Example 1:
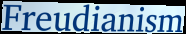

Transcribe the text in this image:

Freudianism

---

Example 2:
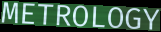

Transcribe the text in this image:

METROLOGY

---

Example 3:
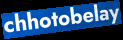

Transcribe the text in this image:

chhotobelay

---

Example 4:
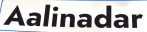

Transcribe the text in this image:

Aalinadar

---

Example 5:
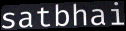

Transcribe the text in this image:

satbhai